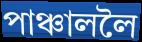
পাঞ্চাললৈ